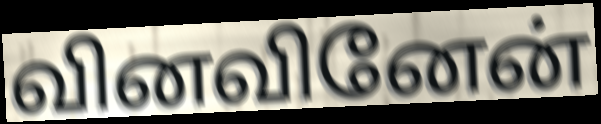
வினவினேன்